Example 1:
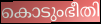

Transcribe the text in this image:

കൊടുംഭീതി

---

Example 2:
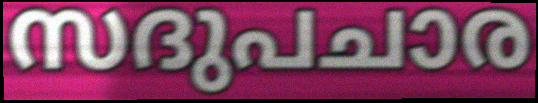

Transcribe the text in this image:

സദുപചാര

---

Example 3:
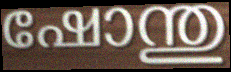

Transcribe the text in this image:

ഷോന്തു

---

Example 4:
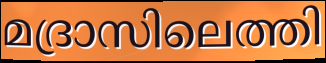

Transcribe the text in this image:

മദ്രാസിലെത്തി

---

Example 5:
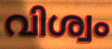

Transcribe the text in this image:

വിശ്വം